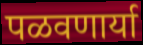
पळवणार्या